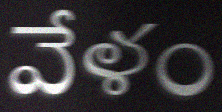
వేళం